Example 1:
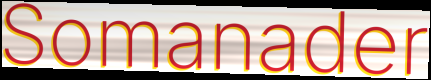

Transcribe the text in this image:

Somanader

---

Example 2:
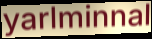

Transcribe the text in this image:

yarlminnal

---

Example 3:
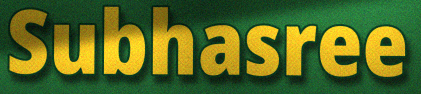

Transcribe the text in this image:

Subhasree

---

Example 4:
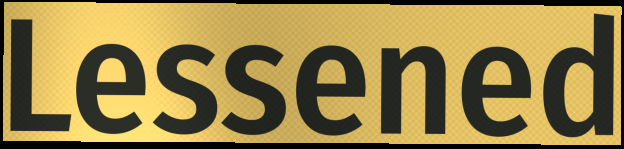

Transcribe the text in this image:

Lessened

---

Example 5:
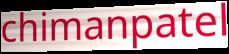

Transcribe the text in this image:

chimanpatel